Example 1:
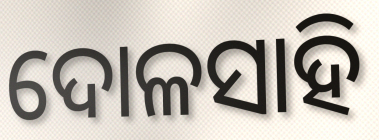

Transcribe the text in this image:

ଦୋଳସାହି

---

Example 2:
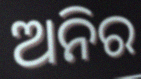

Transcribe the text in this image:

ଅନିର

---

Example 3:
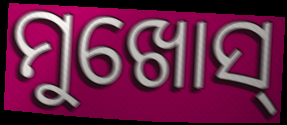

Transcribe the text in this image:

ମୁଖୋସ୍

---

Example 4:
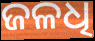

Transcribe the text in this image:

ଜଳଧି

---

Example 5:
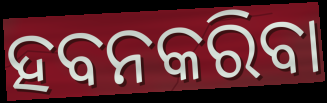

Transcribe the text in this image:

ହବନକରିବା